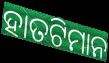
ହାତଟିମାନ